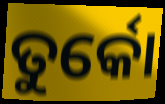
ତୁର୍କୋ